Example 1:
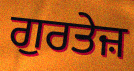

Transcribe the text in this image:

ਗੁਰਤੇਜ਼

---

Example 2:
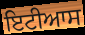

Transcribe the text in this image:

ਇਟੀਆਸ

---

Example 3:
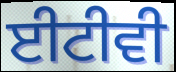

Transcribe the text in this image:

ਈਟੀਵੀ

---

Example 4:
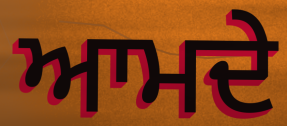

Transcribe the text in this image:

ਆਮਦੇ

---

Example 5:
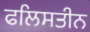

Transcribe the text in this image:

ਫਲਿਸਤੀਨ